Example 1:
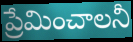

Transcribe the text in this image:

ప్రేమించాలనీ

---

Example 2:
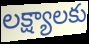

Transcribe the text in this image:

లక్ష్యాలకు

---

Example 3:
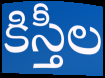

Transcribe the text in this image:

కిస్తీల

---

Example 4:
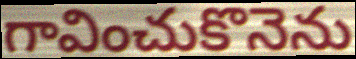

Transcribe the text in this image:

గావించుకొనెను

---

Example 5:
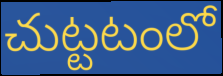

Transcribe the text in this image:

చుట్టటంలో